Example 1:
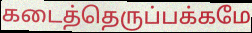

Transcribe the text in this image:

கடைத்தெருப்பக்கமே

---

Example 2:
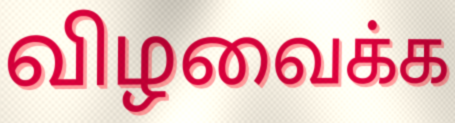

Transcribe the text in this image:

விழவைக்க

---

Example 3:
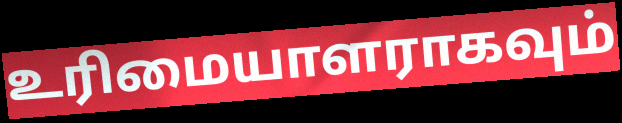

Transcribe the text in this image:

உரிமையாளராகவும்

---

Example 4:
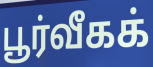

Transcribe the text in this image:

பூர்வீகக்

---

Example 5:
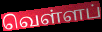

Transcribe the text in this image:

வெள்ளப்